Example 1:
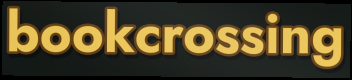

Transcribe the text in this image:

bookcrossing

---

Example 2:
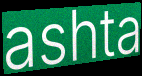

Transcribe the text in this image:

ashta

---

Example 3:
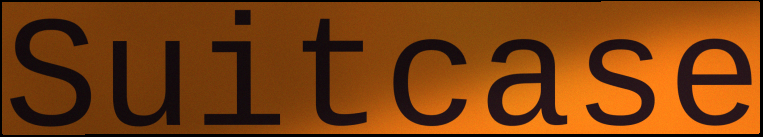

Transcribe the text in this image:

Suitcase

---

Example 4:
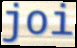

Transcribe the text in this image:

joi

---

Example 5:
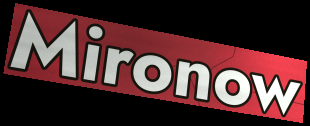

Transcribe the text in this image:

Mironow